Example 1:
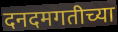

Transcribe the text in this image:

दनदमगतीच्या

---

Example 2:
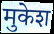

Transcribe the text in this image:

मुकेश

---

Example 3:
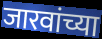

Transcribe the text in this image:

जारवांच्या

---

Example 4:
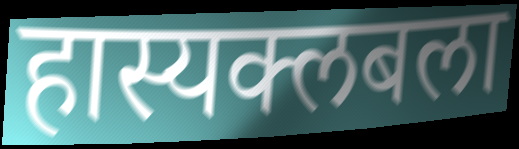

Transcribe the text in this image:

हास्यक्लबला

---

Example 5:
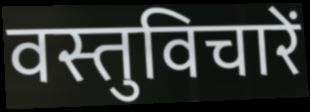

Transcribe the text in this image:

वस्तुविचारें